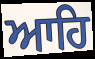
ਆਹਿ